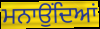
ਮਨਾਉਂਦਿਆਂ